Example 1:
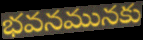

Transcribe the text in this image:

భవనమునకు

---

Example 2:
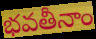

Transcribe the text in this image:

భవతీనాం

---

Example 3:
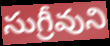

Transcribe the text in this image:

సుగ్రీవుని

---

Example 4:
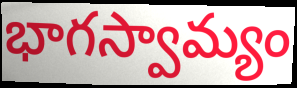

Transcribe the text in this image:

భాగస్వామ్యం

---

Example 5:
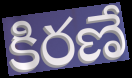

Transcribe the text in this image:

కిరణే